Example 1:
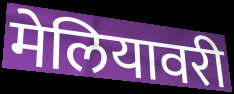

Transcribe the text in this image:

मेलियावरी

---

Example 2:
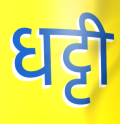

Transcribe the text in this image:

धट्टी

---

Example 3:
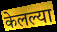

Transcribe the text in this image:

केलल्या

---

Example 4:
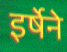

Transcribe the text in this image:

इर्षेने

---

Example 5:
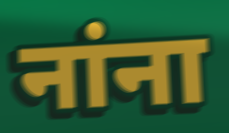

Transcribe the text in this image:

नांना